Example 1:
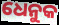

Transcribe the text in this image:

ଧେନୁକ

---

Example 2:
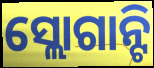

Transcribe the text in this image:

ସ୍ଲୋଗାନ୍ଟି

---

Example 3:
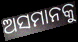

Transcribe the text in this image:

ଅସମାନକୁ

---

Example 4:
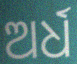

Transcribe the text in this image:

ଅର୍ଧ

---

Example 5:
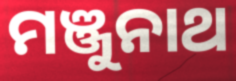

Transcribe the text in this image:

ମଞ୍ଜୁନାଥ